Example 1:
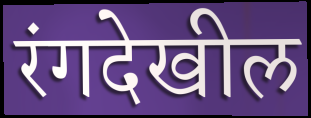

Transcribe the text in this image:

रंगदेखील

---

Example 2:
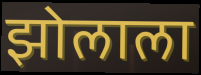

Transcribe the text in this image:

झोलाला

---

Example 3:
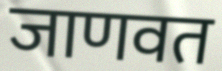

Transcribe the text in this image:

जाणवत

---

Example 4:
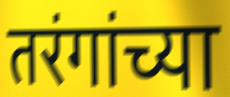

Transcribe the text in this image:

तरंगांच्या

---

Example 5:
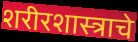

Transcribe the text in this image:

शरीरशास्त्राचे